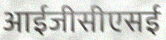
आईजीसीएसई